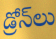
డ్రోన్‌లు